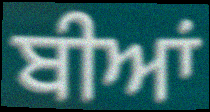
ਬੀਆਂ